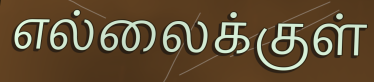
எல்லைக்குள்